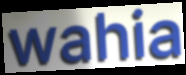
wahia